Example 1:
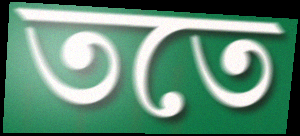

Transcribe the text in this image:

ততে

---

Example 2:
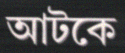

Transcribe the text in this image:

আটকে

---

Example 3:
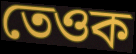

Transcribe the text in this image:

তেওক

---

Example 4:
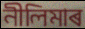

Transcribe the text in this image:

নীলিমাৰ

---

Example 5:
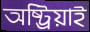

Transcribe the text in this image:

অষ্ট্ৰিয়াই